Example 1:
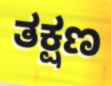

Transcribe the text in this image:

ತಕ್ಷಣ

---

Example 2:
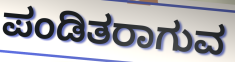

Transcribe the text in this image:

ಪಂಡಿತರಾಗುವ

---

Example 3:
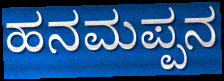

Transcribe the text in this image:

ಹನಮಪ್ಪನ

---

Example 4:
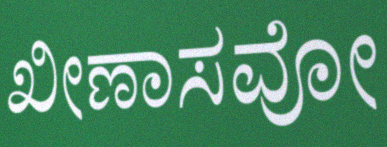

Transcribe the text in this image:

ಖೀಣಾಸವೋ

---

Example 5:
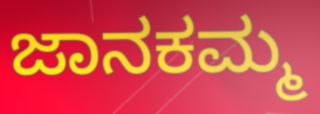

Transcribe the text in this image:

ಜಾನಕಮ್ಮ